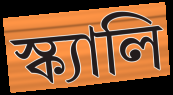
স্ক্যালি